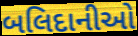
બલિદાનીઓ